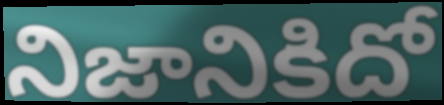
నిజానికిదో